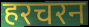
हरचरन